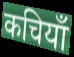
कचियाँ